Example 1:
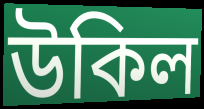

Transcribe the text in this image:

উকিল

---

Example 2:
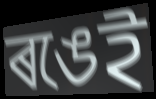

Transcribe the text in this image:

ৰঙেই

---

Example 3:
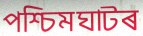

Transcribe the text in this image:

পশ্চিমঘাটৰ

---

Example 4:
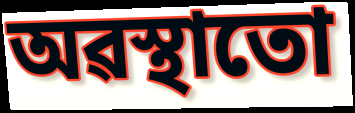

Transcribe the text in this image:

অৱস্থাতো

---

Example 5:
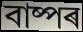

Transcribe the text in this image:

বাষ্পৰ